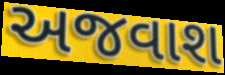
અજવાશ